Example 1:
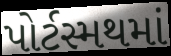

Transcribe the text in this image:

પોર્ટસ્મથમાં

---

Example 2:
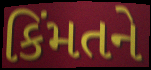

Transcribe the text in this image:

કિંમતને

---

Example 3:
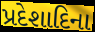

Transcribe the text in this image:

પ્રદેશાદિના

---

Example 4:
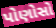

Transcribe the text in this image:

પોણોસો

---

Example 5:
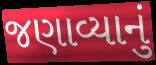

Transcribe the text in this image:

જણાવ્યાનું